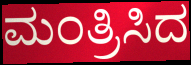
ಮಂತ್ರಿಸಿದ